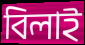
বিলাই